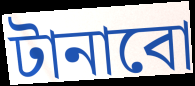
টানাবো